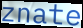
znate